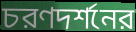
চরণদর্শনের